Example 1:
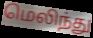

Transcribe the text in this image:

மெலிந்து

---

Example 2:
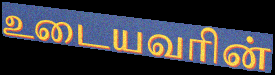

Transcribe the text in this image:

உடையவரின்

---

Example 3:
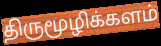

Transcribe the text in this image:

திருமூழிக்களம்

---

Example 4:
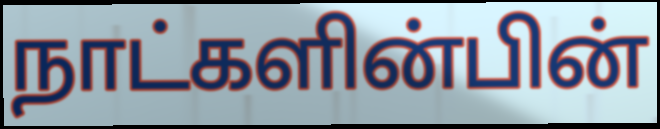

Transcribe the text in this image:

நாட்களின்பின்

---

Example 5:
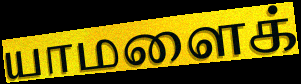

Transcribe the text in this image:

யாமளைக்